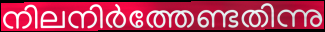
നിലനിർത്തേണ്ടതിന്നു